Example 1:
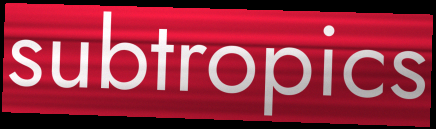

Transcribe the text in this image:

subtropics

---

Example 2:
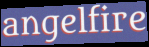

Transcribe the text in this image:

angelfire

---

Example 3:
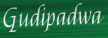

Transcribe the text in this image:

Gudipadwa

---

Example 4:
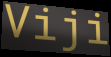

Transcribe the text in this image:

Viji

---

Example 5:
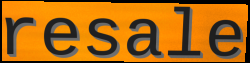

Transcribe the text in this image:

resale